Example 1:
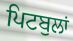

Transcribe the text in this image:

ਪਿਟਬੁਲਾਂ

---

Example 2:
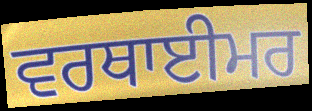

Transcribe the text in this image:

ਵਰਥਾਈਮਰ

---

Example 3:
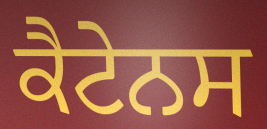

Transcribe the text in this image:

ਕੈਟੇਨਸ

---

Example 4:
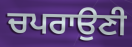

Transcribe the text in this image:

ਚਪਰਾਉਣੀ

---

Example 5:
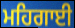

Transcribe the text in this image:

ਮਹਿਗਾਈ